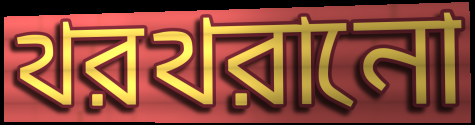
থরথরানো